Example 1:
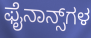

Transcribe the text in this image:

ಫೈನಾನ್ಸ್‌ಗಳ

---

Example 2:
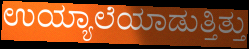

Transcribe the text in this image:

ಉಯ್ಯಾಲೆಯಾಡುತ್ತಿತ್ತು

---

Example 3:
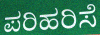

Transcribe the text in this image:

ಪರಿಹರಿಸೆ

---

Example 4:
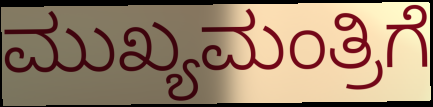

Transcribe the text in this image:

ಮುಖ್ಯಮಂತ್ರಿಗೆ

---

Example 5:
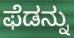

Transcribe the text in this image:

ಫೆಡನ್ನು